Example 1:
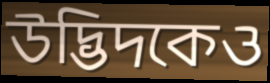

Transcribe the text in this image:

উদ্ভিদকেও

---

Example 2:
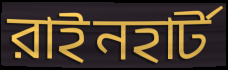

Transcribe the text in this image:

রাইনহার্ট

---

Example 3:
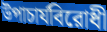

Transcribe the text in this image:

উপাচার্যবিরোধী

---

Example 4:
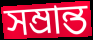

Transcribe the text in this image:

সম্রান্ত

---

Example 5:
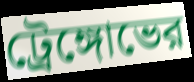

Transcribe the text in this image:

ট্রেঙ্গোভের